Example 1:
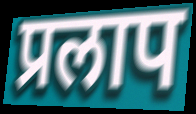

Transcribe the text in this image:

प्रलाप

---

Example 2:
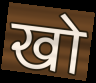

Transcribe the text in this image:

खो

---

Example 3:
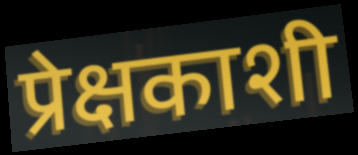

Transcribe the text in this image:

प्रेक्षकाशी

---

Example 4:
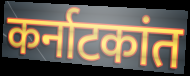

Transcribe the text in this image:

कर्नाटकांत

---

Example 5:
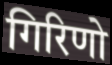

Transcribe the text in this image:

गिरिणो